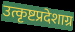
उत्कृष्टप्रदेशाग्र